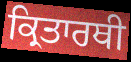
ਕ੍ਰਿਤਾਰਥੀ